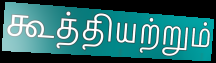
கூத்தியற்றும்